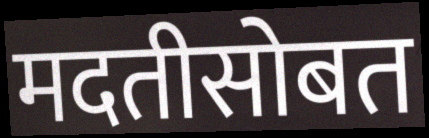
मदतीसोबत